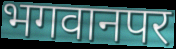
भगवानपर